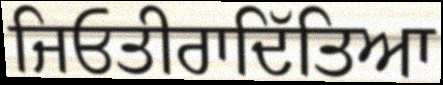
ਜਿਓਤੀਰਾਦਿੱਤਿਆ